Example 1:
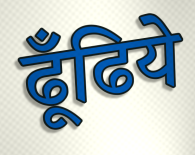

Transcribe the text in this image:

ढूँढिये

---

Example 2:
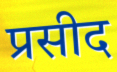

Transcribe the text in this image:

प्रसीद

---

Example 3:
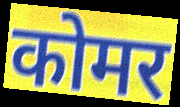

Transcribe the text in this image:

कोमर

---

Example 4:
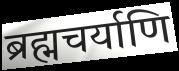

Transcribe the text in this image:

ब्रह्मचर्याणि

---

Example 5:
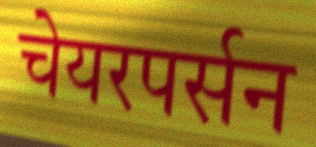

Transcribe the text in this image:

चेयरपर्सन